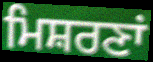
ਮਿਸ਼ਰਣਾਂ